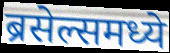
ब्रसेल्समध्ये